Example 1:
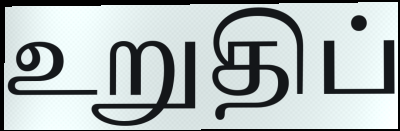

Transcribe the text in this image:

உறுதிப்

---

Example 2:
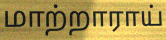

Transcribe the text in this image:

மாற்றாராய்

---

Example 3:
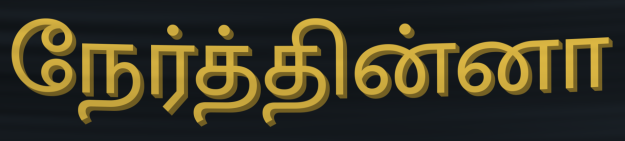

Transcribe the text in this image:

நேர்த்தின்னா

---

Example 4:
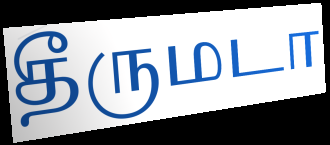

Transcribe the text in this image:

தீருமடா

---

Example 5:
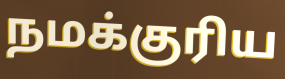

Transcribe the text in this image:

நமக்குரிய